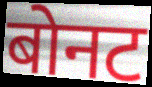
बोनट